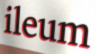
ileum